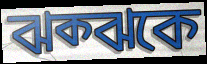
ঝক্ঝকে